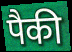
पैकी